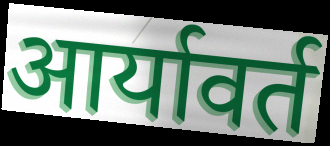
आर्यावर्त